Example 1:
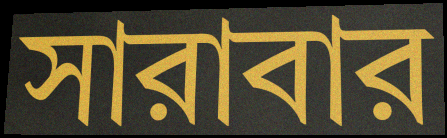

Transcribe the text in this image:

সারাবার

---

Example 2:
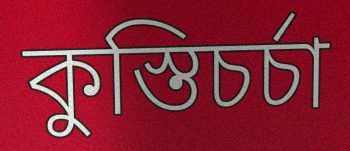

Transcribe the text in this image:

কুস্তিচর্চা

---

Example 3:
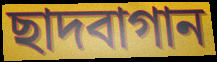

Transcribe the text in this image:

ছাদবাগান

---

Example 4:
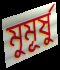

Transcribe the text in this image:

মুমূর্ষু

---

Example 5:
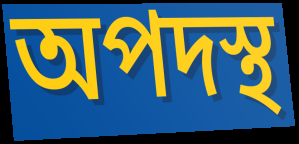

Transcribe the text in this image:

অপদস্থ